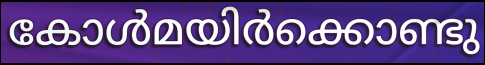
കോൾമയിർക്കൊണ്ടു